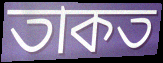
তাকত